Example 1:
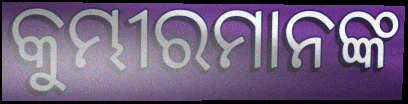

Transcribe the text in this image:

କୁମ୍ଭୀରମାନଙ୍କ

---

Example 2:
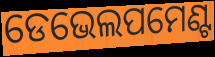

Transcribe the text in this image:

ଡେଭେଲପମେଣ୍ଟ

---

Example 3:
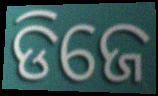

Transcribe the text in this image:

ଡିଜେ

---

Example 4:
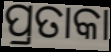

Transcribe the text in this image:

ପ୍ରତାକା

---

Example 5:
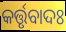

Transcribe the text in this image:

କର୍ତ୍ତୃବାଦଃ